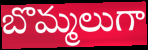
బొమ్మలుగా